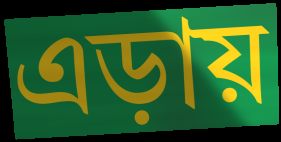
এড়ায়